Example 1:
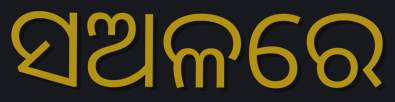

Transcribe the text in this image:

ସଅଳରେ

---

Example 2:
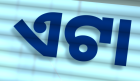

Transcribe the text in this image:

ଏଟା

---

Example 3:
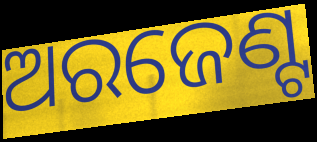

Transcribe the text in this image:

ଅରଜେଣ୍ଟ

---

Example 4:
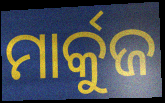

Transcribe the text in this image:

ମାର୍କୁଜ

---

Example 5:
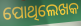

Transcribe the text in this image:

ପୋଥିଲେଖକ